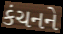
કંચનને